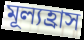
মূল্যহ্রাস